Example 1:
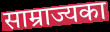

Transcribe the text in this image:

साम्राज्यका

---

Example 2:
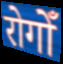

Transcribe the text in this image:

रोगोँ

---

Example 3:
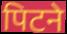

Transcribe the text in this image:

पिटने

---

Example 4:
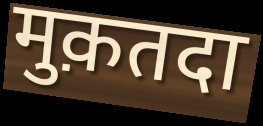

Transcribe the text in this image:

मुक़तदा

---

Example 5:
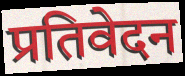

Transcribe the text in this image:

प्रतिवेदन